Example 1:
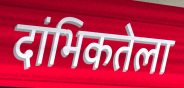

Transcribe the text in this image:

दांभिकतेला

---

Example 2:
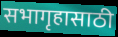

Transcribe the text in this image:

सभागृहासाठी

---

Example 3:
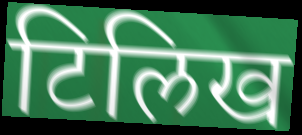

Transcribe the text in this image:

टिलिख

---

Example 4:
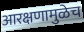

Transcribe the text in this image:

आरक्षणामुळेच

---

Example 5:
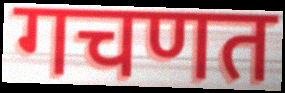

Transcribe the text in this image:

गचणत